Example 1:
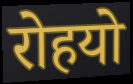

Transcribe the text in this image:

रोहयो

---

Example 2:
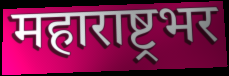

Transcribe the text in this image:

महाराष्ट्रभर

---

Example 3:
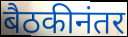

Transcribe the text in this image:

बैठकीनंतर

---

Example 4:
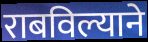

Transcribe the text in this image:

राबविल्याने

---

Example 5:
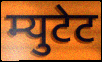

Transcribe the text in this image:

म्युटेट